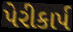
પેરીકાર્પ